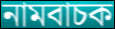
নামবাচক